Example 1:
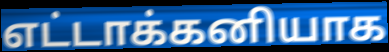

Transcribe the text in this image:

எட்டாக்கனியாக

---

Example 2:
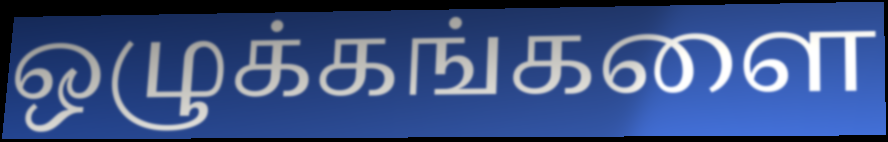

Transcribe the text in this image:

ஒழுக்கங்களை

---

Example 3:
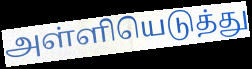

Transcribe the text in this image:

அள்ளியெடுத்து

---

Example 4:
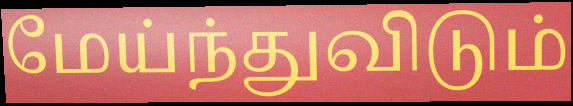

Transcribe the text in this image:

மேய்ந்துவிடும்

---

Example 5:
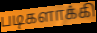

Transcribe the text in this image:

படிகளாக்கி